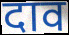
दाव